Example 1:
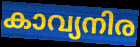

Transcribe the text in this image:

കാവ്യനിര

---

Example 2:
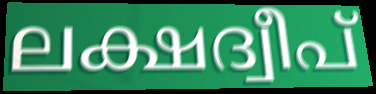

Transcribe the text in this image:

ലക്ഷദ്വീപ്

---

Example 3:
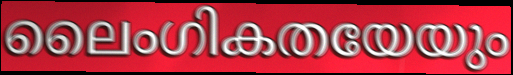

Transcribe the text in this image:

ലൈംഗികതയേയും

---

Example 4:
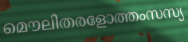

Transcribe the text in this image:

മൌലിതരളോത്തംസസ്യ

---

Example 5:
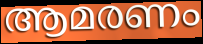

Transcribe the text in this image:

ആമരണം